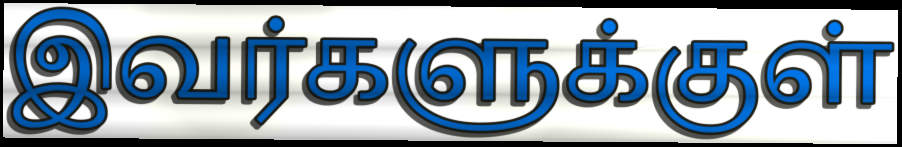
இவர்களுக்குள்